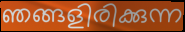
ഞങ്ങളിരിക്കുന്ന